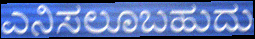
ಎನಿಸಲೂಬಹುದು